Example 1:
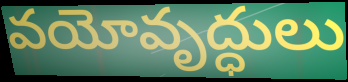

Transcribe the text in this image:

వయోవృద్ధులు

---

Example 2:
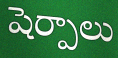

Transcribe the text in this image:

షెర్పాలు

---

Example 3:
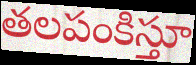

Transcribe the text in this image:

తలపంకిస్తూ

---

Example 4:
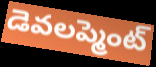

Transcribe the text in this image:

డెవలప్మెంట్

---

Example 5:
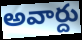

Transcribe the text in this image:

అవార్దు